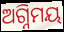
ଅଗ୍ନିମୟ